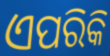
ଏପରିକି